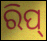
ରିପ୍